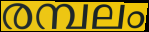
രമ്പലം